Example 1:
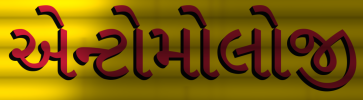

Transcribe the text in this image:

એન્ટોમોલોજી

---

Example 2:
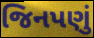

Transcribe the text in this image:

જિનપણું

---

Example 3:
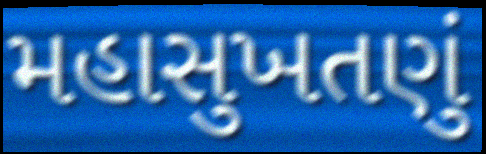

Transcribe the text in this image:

મહાસુખતણું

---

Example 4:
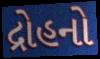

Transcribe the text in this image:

દ્રોહનો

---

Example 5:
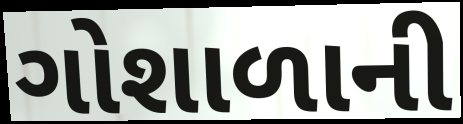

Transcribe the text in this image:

ગોશાળાની